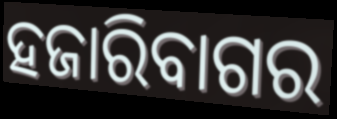
ହଜାରିବାଗର